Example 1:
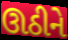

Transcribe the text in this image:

ઊઠીને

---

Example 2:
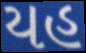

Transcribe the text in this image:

યહ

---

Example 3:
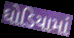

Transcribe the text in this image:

ઘોડિયામાં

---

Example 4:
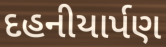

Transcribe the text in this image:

દહનીયાર્પણ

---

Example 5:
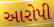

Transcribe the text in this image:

આરોપી